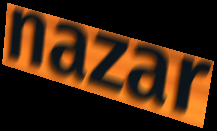
nazar